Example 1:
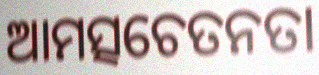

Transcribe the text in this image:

ଆମତ୍ସଚେତନତା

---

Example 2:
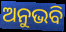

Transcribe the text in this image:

ଅନୁଭବି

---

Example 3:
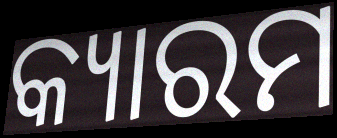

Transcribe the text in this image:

କ୍ୟାରମ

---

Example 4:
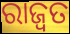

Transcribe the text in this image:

ରାଜ୍ୱତ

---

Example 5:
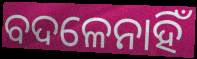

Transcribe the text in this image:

ବଦଳେନାହିଁ